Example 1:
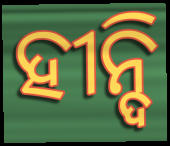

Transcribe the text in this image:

ହୀନ୍ଦି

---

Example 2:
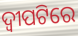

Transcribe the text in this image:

ଦ୍ୱୀପଟିରେ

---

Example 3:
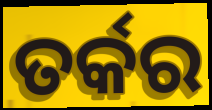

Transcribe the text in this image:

ତର୍କର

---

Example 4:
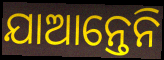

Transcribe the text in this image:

ଯାଆନ୍ତେନି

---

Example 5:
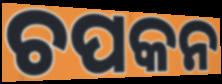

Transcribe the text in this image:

ଚପକନ